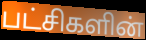
பட்சிகளின்